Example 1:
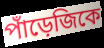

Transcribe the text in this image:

পাঁড়েজিকে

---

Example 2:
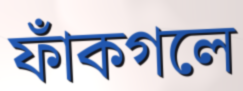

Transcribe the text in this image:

ফাঁকগলে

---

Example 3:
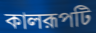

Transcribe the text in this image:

কালরূপটি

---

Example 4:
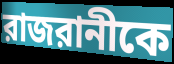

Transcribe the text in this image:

রাজরানীকে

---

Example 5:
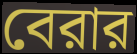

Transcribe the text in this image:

বেরার